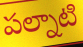
పల్నాటి